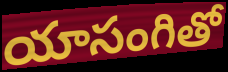
యాసంగితో